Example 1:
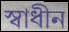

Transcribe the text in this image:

স্বাধীন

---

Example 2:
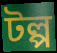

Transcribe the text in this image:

টল্প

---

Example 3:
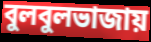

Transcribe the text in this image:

বুলবুলভাজায়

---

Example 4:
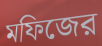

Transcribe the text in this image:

মফিজের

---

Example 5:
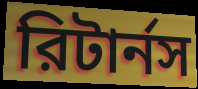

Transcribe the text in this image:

রিটার্নস